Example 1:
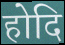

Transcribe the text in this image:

होदि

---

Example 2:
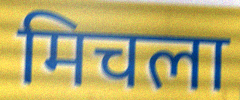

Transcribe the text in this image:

मिचला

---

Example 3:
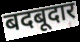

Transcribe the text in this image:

बदबूदार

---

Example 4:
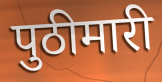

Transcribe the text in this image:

पुठीमारी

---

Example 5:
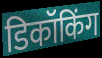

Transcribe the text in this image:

डिकॉकिंग